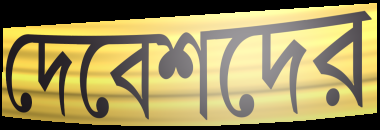
দেবেশদের